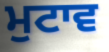
ਮੁਟਾਵ